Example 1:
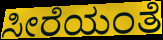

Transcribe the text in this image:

ಸೀರೆಯಂತೆ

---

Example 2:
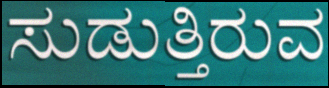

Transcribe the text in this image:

ಸುಡುತ್ತಿರುವ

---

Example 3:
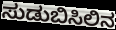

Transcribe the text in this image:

ಸುಡುಬಿಸಿಲಿನ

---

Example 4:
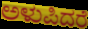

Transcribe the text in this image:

ಅಳುಪಿದರೆ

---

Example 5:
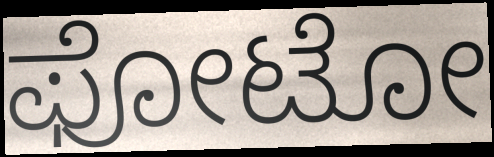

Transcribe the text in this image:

ಫೋಟೋ